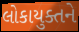
લોકાયુક્તને